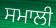
ਸਮਾਲੀ